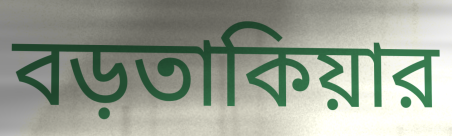
বড়তাকিয়ার